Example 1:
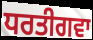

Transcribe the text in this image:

ਧਰਤੀਗਵਾ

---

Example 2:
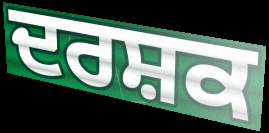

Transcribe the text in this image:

ਦਰਸ਼ਕ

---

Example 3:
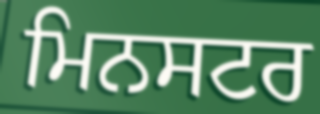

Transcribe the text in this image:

ਮਿਨਸਟਰ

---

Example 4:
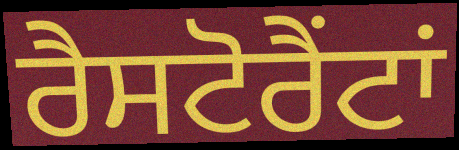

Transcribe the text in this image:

ਰੈਸਟੋਰੈਂਟਾਂ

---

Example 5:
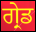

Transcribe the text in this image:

ਗ੍ਰੇਡ